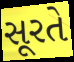
સૂરતે